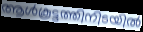
ആൾകൂട്ടത്തിനിടയിൽ